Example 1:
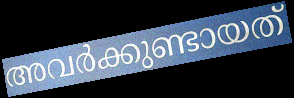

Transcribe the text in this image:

അവർക്കുണ്ടായത്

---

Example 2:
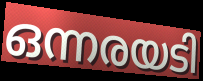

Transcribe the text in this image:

ഒന്നരയടി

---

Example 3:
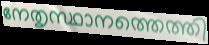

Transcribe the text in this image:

നേതൃസ്ഥാനത്തെത്തി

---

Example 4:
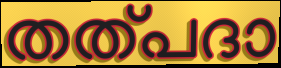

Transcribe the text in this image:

തത്പദാ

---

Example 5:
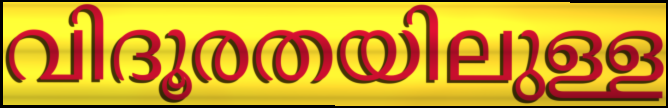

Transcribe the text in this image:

വിദൂരതയിലുള്ള